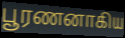
பூரணனாகிய